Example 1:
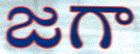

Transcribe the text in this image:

జగా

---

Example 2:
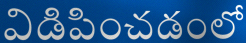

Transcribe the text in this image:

విడిపించడంలో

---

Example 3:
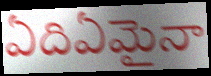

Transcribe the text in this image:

ఏదిఏమైనా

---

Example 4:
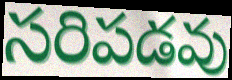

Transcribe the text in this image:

సరిపడవు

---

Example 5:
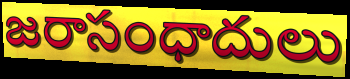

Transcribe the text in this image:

జరాసంధాదులు